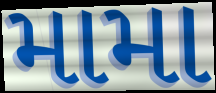
મામા